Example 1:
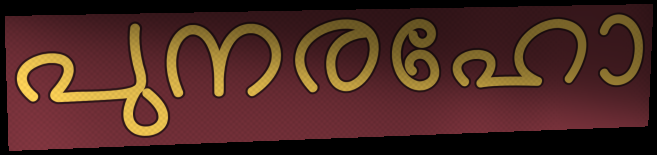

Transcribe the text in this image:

പുനരഹോ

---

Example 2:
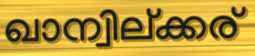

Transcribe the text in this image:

ഖാന്വില്ക്കര്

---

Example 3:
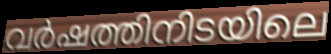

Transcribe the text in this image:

വർഷത്തിനിടയിലെ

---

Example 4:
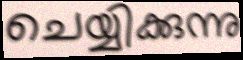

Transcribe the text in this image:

ചെയ്യിക്കുന്നു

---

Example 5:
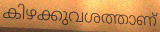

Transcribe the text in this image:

കിഴക്കുവശത്താണ്